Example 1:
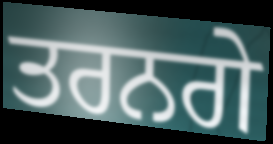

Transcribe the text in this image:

ਤਰਨਗੇ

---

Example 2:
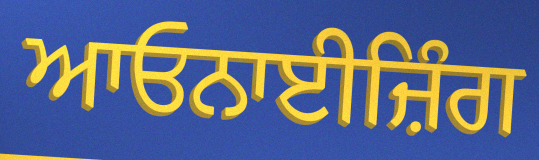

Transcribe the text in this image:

ਆਓਨਾਈਜ਼ਿੰਗ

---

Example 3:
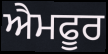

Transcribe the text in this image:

ਐਮਫੂਰ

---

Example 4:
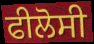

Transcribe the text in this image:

ਫੀਲੋਸੀ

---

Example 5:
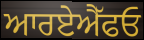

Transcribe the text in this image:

ਆਰਏਐੱਫਓ